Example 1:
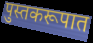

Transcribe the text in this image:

पुस्तकरूपात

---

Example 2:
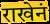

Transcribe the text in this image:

राखेनं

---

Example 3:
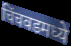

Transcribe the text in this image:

चिंचवडमध्ये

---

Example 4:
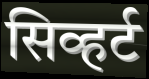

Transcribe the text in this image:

सिव्हर्ट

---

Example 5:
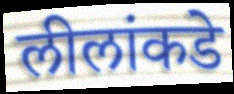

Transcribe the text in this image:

लीलांकडे